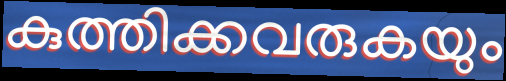
കുത്തിക്കവരുകയും